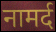
नामर्द